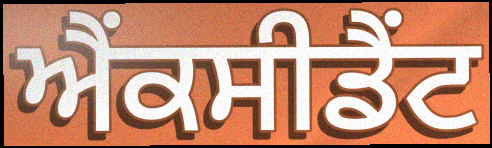
ਐਂਕਸੀਡੈਂਟ